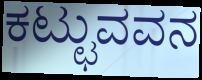
ಕಟ್ಟುವವನ